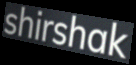
shirshak